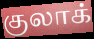
குலாக்